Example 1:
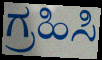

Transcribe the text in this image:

ಗ್ರಹಿಸಿ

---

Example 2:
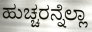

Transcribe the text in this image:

ಹುಚ್ಚರನ್ನೆಲ್ಲಾ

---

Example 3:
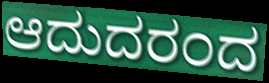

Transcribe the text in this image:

ಆದುದರಂದ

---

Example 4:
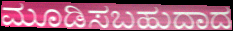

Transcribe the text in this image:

ಮೂಡಿಸಬಹುದಾದ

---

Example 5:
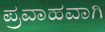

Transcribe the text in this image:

ಪ್ರವಾಹವಾಗಿ